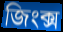
জিংক্স